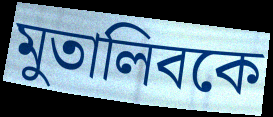
মুতালিবকে